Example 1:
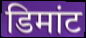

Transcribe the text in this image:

डिमांट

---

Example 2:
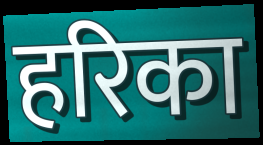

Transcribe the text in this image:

हरिका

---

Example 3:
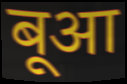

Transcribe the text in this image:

बूआ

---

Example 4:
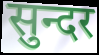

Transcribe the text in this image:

सुन्दर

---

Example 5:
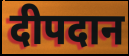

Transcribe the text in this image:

दीपदान